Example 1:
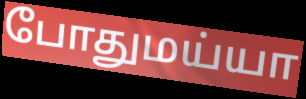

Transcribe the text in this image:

போதுமய்யா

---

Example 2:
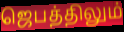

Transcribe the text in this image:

ஜெபத்திலும்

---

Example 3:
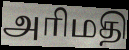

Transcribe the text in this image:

அரிமதி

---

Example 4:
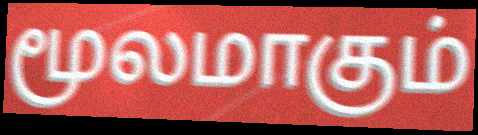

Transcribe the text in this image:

மூலமாகும்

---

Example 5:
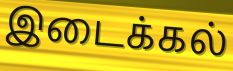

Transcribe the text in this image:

இடைக்கல்